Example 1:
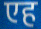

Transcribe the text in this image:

एह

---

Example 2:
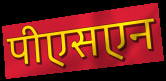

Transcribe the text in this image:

पीएसएन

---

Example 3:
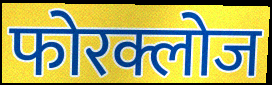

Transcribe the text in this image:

फोरक्लोज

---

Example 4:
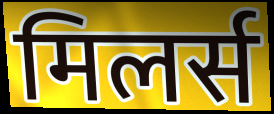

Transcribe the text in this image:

मिलर्स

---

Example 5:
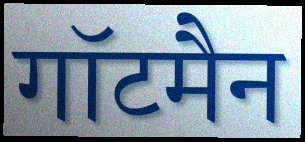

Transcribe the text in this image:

गॉटमैन